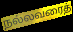
நல்லவரைத்